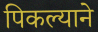
पिकल्याने